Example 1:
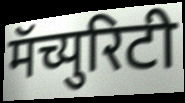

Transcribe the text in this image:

मॅच्युरिटी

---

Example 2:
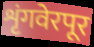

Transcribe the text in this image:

शृंगवेरपूर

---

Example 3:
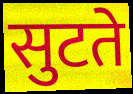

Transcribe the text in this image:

सुटते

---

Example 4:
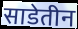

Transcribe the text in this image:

साडेतीन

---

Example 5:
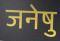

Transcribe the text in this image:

जनेषु